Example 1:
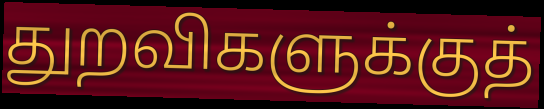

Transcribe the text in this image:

துறவிகளுக்குத்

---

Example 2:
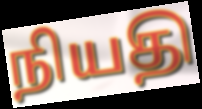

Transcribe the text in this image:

நியதி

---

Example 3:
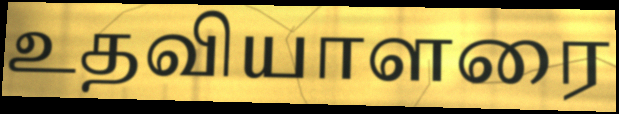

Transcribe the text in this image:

உதவியாளரை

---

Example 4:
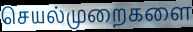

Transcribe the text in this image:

செயல்முறைகளை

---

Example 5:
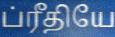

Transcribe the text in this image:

ப்ரீதியே